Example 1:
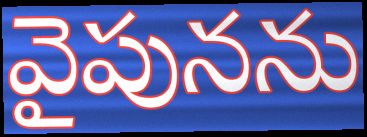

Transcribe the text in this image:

వైపునను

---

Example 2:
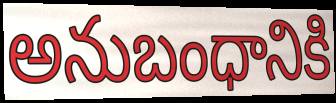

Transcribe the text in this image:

అనుబంధానికి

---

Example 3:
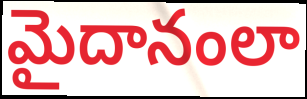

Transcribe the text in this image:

మైదానంలా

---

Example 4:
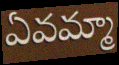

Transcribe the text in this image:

ఏవమ్మా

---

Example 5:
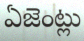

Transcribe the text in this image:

ఏజెంట్లు